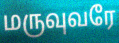
மருவுவரே